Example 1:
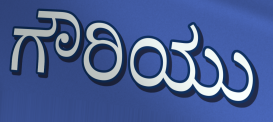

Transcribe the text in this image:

ಗೌರಿಯು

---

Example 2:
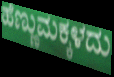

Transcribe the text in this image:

ಹೆಣ್ಣುಮಕ್ಕಳದು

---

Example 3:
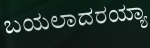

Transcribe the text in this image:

ಬಯಲಾದರಯ್ಯಾ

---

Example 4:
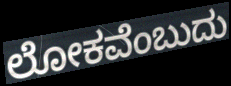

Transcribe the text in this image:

ಲೋಕವೆಂಬುದು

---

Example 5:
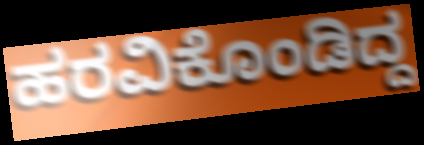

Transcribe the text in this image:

ಹರವಿಕೊಂಡಿದ್ದ